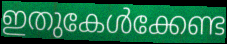
ഇതുകേൾക്കേണ്ട